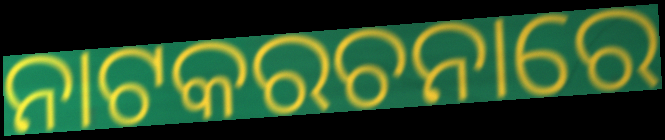
ନାଟକରଚନାରେ